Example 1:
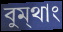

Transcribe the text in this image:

বুম্থাং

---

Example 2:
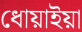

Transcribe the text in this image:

ধোয়াইয়া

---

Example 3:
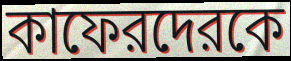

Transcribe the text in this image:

কাফেরদেরকে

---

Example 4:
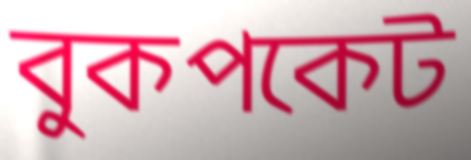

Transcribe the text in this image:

বুকপকেট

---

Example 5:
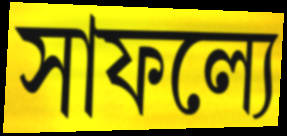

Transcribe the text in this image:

সাফল্যে